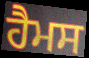
ਹੈਮਸ